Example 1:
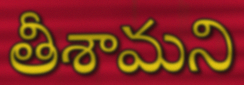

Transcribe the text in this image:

తీశామని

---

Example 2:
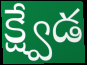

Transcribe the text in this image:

క్ష్వేడ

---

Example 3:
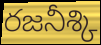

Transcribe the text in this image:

రజనీశ్కి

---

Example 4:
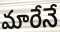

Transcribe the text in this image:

మారేనే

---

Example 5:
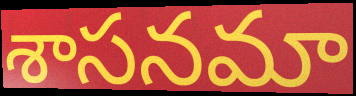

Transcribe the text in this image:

శాసనమా